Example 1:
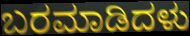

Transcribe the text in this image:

ಬರಮಾಡಿದಳು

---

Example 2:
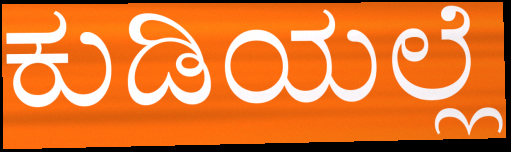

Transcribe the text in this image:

ಕುಡಿಯಲ್ಲೆ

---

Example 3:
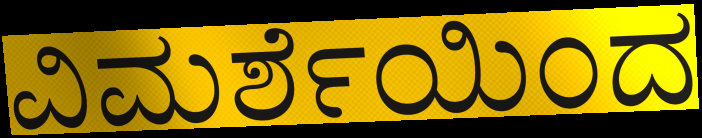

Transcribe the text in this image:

ವಿಮರ್ಶೆಯಿಂದ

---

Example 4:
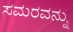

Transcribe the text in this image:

ಸಮರವನ್ನು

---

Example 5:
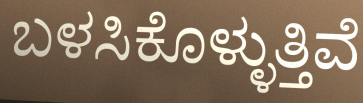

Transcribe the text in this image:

ಬಳಸಿಕೊಳ್ಳುತ್ತಿವೆ